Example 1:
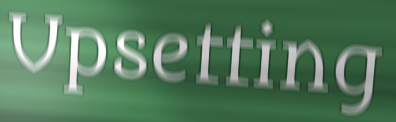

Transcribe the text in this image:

Upsetting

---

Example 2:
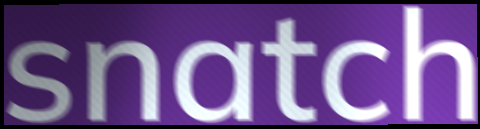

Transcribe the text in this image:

snatch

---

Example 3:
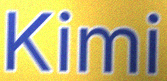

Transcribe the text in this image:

Kimi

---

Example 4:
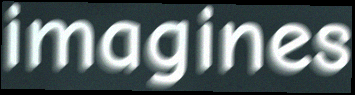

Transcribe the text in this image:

imagines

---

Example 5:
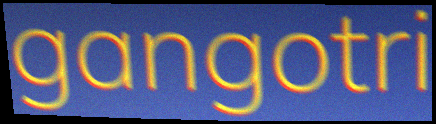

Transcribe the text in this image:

gangotri